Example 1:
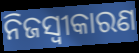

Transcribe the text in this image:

ନିଜସ୍ବୀକାରଣ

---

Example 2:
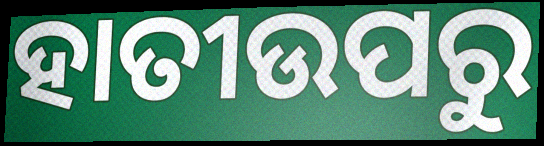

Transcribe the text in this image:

ହାତୀଉପରୁ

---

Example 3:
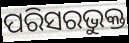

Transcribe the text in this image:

ପରିସରଭୁକ୍ତ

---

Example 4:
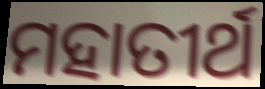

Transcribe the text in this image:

ମହାତୀର୍ଥ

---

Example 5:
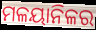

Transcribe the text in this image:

ମଳୟାନିଳର